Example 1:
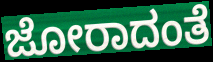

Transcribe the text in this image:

ಜೋರಾದಂತೆ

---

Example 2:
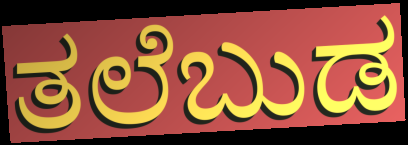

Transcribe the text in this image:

ತಲೆಬುಡ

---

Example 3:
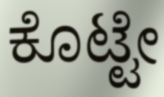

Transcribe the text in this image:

ಕೊಟ್ಟೇ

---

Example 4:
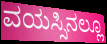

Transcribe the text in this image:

ವಯಸ್ಸಿನಲ್ಲೂ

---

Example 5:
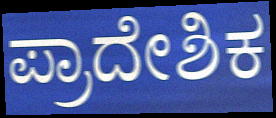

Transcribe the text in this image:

ಪ್ರಾದೇಶಿಕ